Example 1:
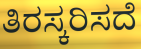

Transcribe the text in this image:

ತಿರಸ್ಕರಿಸದೆ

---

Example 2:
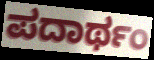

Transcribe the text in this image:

ಪದಾರ್ಥಂ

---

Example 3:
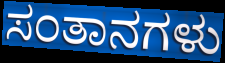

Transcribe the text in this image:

ಸಂತಾನಗಳು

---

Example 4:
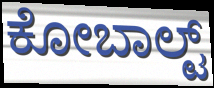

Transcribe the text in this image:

ಕೋಬಾಲ್ಟ್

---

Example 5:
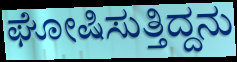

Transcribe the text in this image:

ಘೋಷಿಸುತ್ತಿದ್ದನು